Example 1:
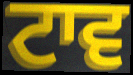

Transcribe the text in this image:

ਟਾਵ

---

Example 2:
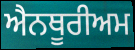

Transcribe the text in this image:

ਐਨਥੂਰੀਅਮ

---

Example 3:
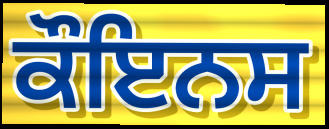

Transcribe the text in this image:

ਕੌਇਨਸ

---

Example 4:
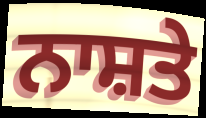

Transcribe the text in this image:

ਨਾਸ਼ਤੇ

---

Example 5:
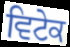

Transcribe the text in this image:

ਵਿਟੇਕ